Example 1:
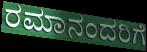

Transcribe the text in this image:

ರಮಾನಂದರಿಗೆ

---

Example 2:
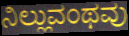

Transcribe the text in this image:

ನಿಲ್ಲುವಂಥವು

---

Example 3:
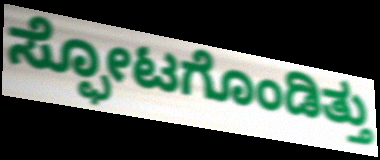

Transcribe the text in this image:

ಸ್ಫೋಟಗೊಂಡಿತ್ತು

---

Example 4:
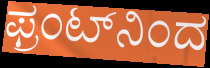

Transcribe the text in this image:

ಫ್ರಂಟ್‌ನಿಂದ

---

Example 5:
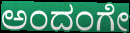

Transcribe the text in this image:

ಅಂದಂಗೇ